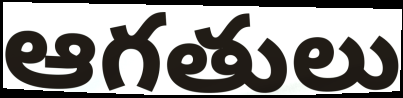
ఆగతులు